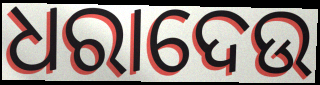
ଧରାଦେଉ